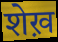
शेख़